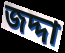
জদ্দা